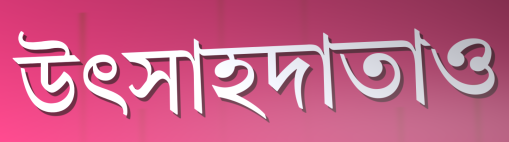
উৎসাহদাতাও